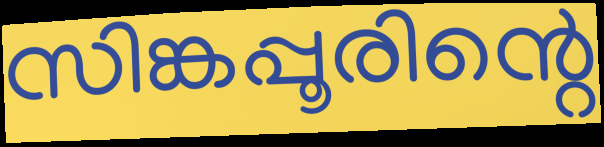
സിങ്കപ്പൂരിന്റെ